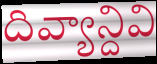
దివ్యాన్దివి